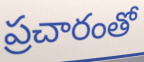
ప్రచారంతో